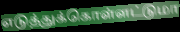
எடுத்துக்கொள்ளட்டுமா